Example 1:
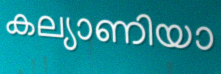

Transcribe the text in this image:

കല്യാണിയാ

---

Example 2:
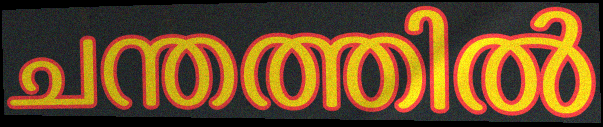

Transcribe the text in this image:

ചന്തത്തിൽ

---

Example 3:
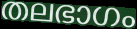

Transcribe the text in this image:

തലഭാഗം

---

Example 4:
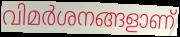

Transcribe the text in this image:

വിമർശനങ്ങളാണ്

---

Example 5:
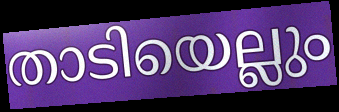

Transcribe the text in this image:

താടിയെല്ലും